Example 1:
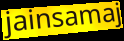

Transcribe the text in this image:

jainsamaj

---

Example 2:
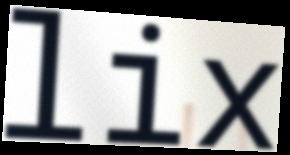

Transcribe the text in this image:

lix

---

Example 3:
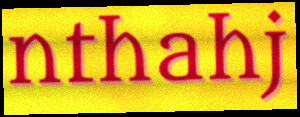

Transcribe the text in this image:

nthahj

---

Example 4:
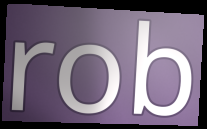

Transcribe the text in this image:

rob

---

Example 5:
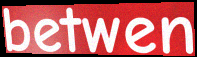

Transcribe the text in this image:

betwen